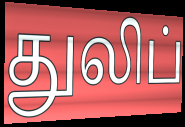
துலிப்